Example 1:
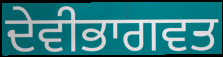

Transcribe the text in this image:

ਦੇਵੀਭਾਗਵਤ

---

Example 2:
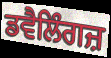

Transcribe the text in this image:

ਡਵੈਲਿੰਗਜ਼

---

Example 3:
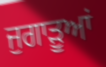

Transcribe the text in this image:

ਜੁਗਾੜੂਆਂ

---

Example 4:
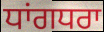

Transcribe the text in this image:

ਧਾਂਗਧਰਾ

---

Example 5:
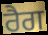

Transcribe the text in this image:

ਰੈਗ